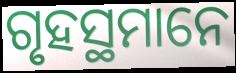
ଗୃହସ୍ଥମାନେ